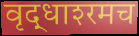
वृद्धाश्रमच